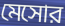
মেসোর